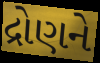
દ્રોણને